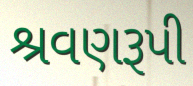
શ્રવણરૂપી